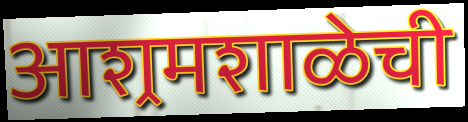
आश्रमशाळेची